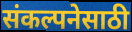
संकल्पनेसाठी